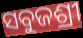
ସବୁଜଶ୍ରୀ